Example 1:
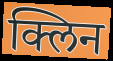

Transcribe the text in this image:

क्लिन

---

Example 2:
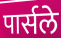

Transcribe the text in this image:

पार्सले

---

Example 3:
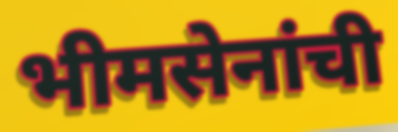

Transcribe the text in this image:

भीमसेनांची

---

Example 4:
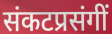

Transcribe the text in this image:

संकटप्रसंगीं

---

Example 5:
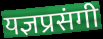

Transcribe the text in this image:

यज्ञप्रसंगी